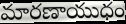
మారణాయుధం